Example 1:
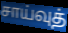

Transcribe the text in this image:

சாய்வுத்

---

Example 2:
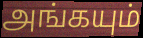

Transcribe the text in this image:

அங்கயும்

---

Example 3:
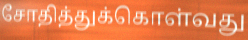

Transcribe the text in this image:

சோதித்துக்கொள்வது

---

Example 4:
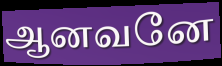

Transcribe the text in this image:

ஆனவனே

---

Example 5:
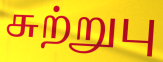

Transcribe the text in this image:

சுற்றுபு